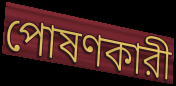
পোষণকারী